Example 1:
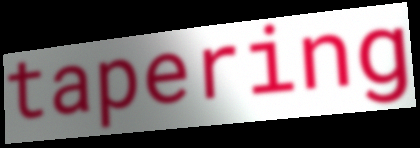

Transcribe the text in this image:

tapering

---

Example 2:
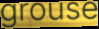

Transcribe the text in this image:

grouse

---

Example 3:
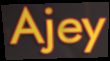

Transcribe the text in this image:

Ajey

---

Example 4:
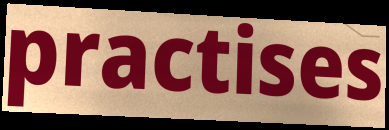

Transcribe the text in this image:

practises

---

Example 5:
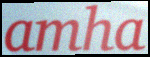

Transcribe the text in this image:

amha